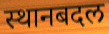
स्थानबदल